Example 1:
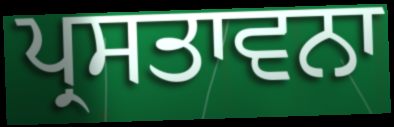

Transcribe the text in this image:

ਪ੍ਰਸਤਾਵਨਾ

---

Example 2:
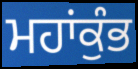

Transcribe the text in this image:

ਮਹਾਂਕੁੰਭ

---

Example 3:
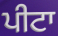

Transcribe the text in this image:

ਪੀਟਾ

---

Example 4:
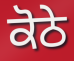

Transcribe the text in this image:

ਕੋਠੇ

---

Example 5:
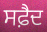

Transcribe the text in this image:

ਸਫ਼ੈਦ